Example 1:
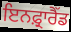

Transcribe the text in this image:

ਇਨਫ਼੍ਰਾਰੈੱਡ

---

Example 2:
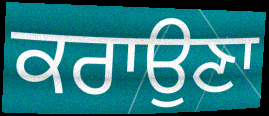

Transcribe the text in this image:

ਕਰਾਉਣਾ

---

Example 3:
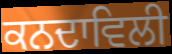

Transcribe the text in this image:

ਕਨਦਾਵਿਲੀ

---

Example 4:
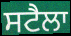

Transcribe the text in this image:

ਸਟੈਲਾ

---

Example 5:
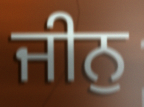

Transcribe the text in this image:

ਜੀਨੁ